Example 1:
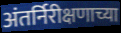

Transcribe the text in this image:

अंतर्निरीक्षणाच्या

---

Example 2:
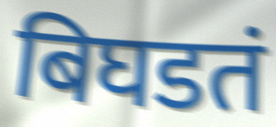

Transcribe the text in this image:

बिघडतं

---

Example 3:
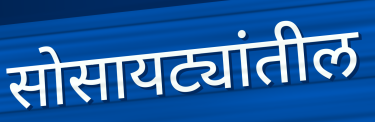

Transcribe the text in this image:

सोसायट्यांतील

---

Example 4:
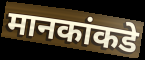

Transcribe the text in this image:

मानकांकडे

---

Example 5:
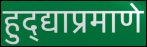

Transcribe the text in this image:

हुद्द्याप्रमाणे